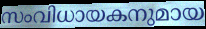
സംവിധായകനുമായ